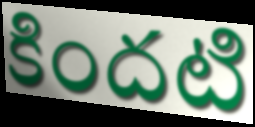
కిందటి